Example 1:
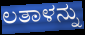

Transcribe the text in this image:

ಲತಾಳನ್ನು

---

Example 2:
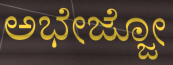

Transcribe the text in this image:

ಅಭೇಜ್ಜೋ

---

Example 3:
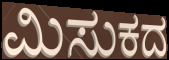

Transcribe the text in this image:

ಮಿಸುಕದ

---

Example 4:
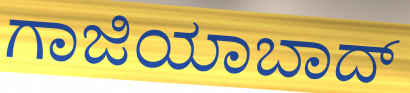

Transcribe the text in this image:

ಗಾಜಿಯಾಬಾದ್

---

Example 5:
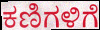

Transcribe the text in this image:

ಕಣಿಗಳಿಗೆ